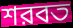
শরবত